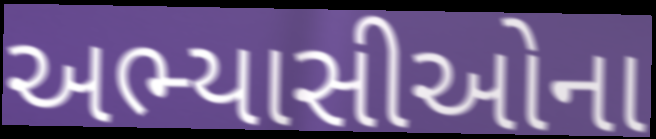
અભ્યાસીઓના